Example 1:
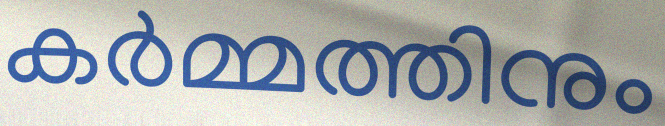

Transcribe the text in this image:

കർമ്മത്തിനും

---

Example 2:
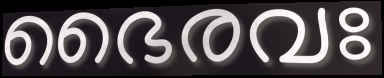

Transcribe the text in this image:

ഭൈരവഃ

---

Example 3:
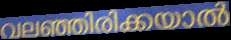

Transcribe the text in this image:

വലഞ്ഞിരിക്കയാൽ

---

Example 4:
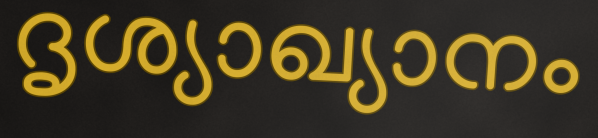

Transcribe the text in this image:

ദൃശ്യാഖ്യാനം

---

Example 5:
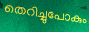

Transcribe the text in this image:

തെറിച്ചുപോകും